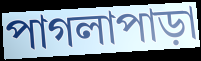
পাগলাপাড়া